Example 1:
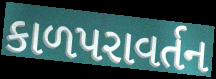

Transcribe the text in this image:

કાળપરાવર્તન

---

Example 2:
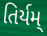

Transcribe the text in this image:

તિર્યમ્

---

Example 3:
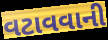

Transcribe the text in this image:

વટાવવાની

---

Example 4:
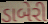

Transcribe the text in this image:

ડાબેરી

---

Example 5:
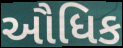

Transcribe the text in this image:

ઔધિક